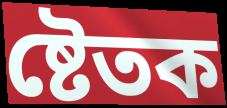
ষ্টেতক